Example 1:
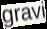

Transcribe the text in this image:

gravi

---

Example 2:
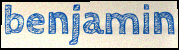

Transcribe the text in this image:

benjamin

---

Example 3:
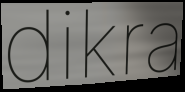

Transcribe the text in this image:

dikra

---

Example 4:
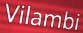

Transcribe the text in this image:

Vilambi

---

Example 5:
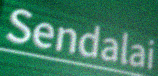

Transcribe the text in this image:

Sendalai